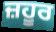
ਜ਼ਹੂਰ